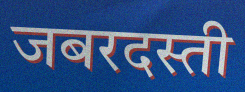
जबरदस्ती